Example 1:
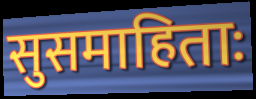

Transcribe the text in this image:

सुसमाहिताः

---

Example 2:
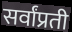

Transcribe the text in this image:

सर्वांप्रती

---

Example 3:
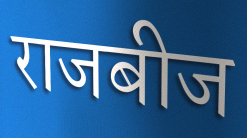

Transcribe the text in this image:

राजबीज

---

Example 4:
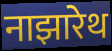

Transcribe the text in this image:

नाझारेथ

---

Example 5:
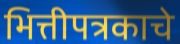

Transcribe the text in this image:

भित्तीपत्रकाचे